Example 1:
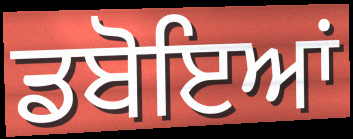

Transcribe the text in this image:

ਡਬੋਇਆਂ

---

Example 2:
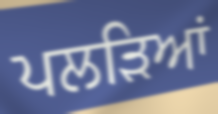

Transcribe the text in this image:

ਪਲੜਿਆਂ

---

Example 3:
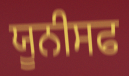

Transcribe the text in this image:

ਯੂਨੀਸਫ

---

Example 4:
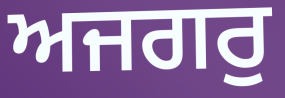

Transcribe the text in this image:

ਅਜਗਰੁ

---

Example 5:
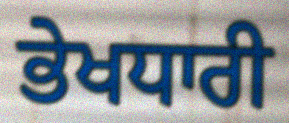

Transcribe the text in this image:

ਭੇਖਧਾਰੀ